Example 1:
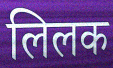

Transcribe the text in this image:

लिलक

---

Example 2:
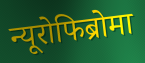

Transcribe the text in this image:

न्यूरोफिब्रोमा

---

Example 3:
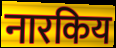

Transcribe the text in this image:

नारकिय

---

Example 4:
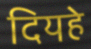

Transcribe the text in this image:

दियहे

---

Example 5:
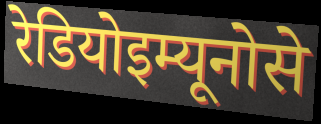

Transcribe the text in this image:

रेडियोइम्यूनोसे